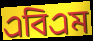
এবিএম